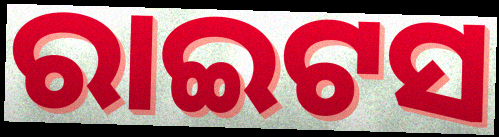
ରାଇଟସ